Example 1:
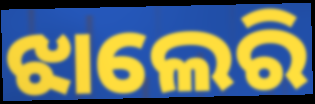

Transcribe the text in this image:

ଝାଲେରି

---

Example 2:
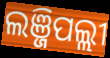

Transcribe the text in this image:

ଲଞ୍ଜିପଲ୍ଲୀ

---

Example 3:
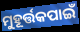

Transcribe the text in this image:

ମୁହୂର୍ତ୍ତକପାଇଁ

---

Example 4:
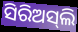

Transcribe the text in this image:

ସିରିଅସ୍‌ଲି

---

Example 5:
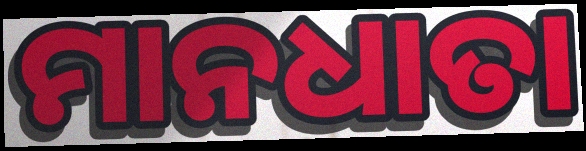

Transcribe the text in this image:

ମାନଧାତା